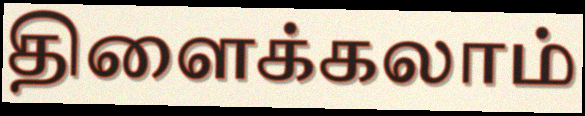
திளைக்கலாம்